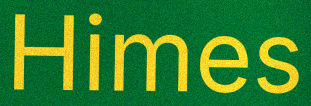
Himes